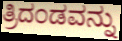
ತ್ರಿದಂಡವನ್ನು